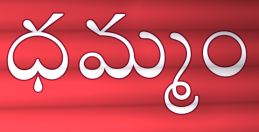
ధమ్మం